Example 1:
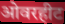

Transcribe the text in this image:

ओवरहीट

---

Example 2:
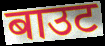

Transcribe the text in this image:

बाउट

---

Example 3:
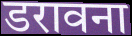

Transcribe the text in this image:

डरावना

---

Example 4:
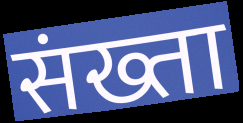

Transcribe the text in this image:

संख्ता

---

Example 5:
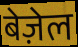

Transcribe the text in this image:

बेज़ेल